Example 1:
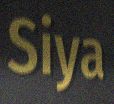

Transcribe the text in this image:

Siya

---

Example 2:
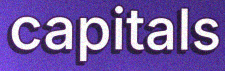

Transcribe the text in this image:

capitals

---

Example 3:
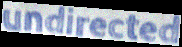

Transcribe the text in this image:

undirected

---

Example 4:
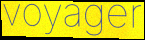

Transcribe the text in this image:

voyager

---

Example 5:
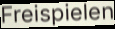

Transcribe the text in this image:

Freispielen